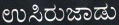
ಉಸಿರುಜಾಡು